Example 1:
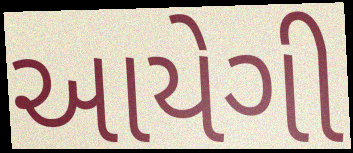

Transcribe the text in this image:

આયેગી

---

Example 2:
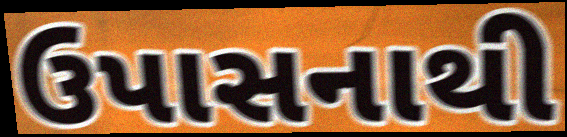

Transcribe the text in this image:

ઉપાસનાથી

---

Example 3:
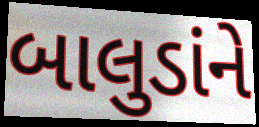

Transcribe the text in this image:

બાલુડાંને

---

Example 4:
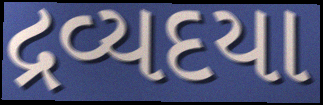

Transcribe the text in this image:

દ્રવ્યદયા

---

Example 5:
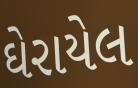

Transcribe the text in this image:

ઘેરાયેલ